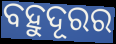
ବହୁଦୂରର